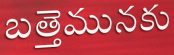
బత్తెమునకు